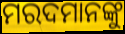
ମରଦମାନଙ୍କୁ